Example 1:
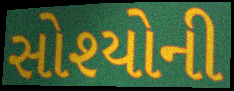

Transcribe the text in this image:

સોશ્યોની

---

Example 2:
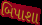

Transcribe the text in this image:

બિપાશા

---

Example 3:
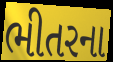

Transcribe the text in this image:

ભીતરના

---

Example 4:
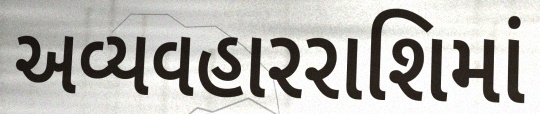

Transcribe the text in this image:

અવ્યવહારરાશિમાં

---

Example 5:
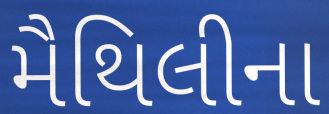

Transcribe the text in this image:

મૈથિલીના